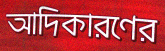
আদিকারণের